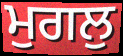
ਮੁਗਲੁ